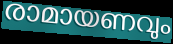
രാമായണവും